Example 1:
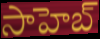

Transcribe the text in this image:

సాహెబ్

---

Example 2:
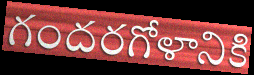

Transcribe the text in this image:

గందరగోళానికి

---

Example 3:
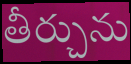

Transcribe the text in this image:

తీర్చును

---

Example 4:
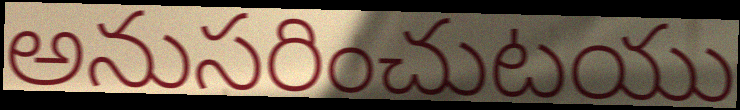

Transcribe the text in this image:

అనుసరించుటయు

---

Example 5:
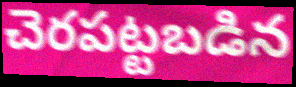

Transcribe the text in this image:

చెరపట్టబడిన